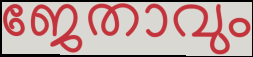
ജേതാവും